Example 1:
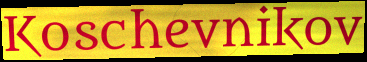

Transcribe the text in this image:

Koschevnikov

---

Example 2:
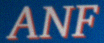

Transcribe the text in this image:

ANF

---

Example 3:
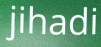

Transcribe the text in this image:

jihadi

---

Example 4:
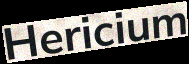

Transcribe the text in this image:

Hericium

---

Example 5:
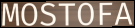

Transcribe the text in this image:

MOSTOFA